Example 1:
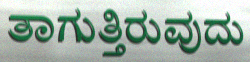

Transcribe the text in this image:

ತಾಗುತ್ತಿರುವುದು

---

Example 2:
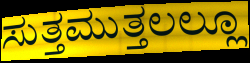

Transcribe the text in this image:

ಸುತ್ತಮುತ್ತಲಲ್ಲೂ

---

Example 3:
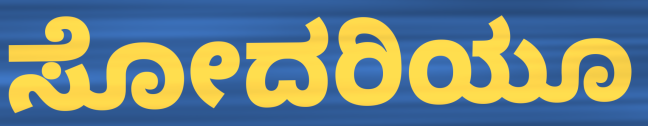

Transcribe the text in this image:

ಸೋದರಿಯೂ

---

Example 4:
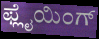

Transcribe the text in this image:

ಫ್ಲೈಯಿಂಗ್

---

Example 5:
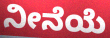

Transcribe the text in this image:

ನೀನೆಯೆ